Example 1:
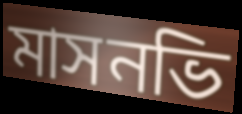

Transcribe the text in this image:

মাসনভি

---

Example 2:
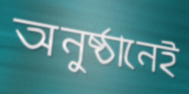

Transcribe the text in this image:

অনুষ্ঠানেই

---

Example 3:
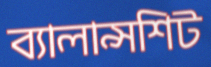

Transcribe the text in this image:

ব্যালান্সশিট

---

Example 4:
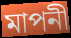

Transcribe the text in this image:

মাপনী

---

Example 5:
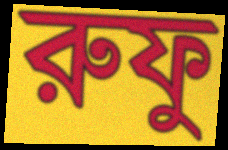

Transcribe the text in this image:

রুফু